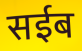
सईब